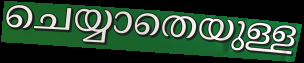
ചെയ്യാതെയുള്ള